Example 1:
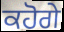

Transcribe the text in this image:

ਕਹੋਗੇ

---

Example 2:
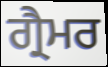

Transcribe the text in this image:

ਗ੍ਰੈਮਰ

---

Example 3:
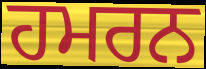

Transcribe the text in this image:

ਹਮਰਨ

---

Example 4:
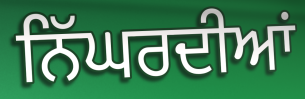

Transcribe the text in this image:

ਨਿੱਘਰਦੀਆਂ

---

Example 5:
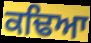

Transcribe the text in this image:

ਕਢਿਆ